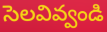
సెలవివ్వండి